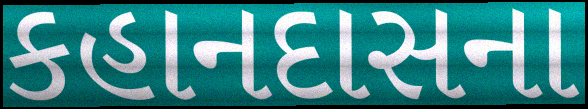
કહાનદાસના